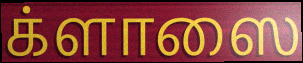
க்ளாஸை